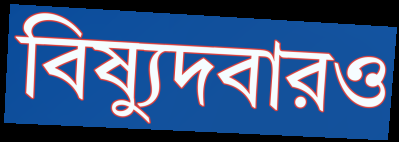
বিষ্যুদবারও